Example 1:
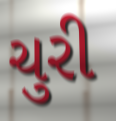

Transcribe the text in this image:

ચુરી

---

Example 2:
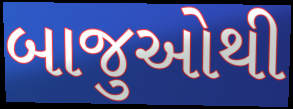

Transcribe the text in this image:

બાજુઓથી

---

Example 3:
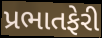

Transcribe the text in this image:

પ્રભાતફેરી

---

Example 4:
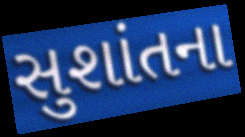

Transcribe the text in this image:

સુશાંતના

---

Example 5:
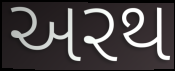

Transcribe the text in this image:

અરથ